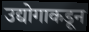
उद्योगाकडून